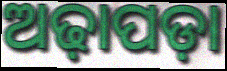
ଅଢ଼ାପଡ଼ା